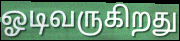
ஓடிவருகிறது